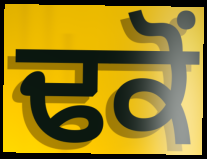
ਢਕੋਂ